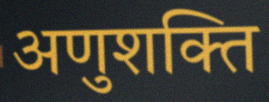
अणुशक्ति